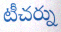
టీచర్ను